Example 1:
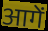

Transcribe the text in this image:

आगें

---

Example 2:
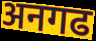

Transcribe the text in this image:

अनगढ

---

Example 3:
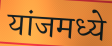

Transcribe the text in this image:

यांजमध्ये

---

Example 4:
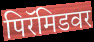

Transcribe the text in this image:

पिरॅमिडवर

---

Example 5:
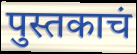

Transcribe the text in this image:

पुस्तकाचं